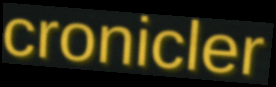
cronicler